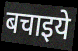
बचाइये